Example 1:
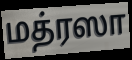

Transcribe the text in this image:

மத்ரஸா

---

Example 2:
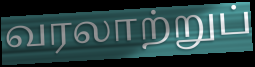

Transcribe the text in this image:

வரலாற்றுப்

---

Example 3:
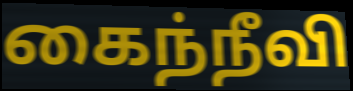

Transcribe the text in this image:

கைந்நீவி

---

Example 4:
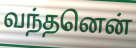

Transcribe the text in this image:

வந்தனென்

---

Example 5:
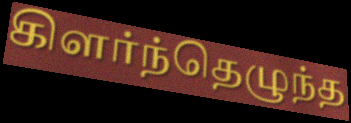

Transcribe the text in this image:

கிளர்ந்தெழுந்த